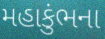
મહાકુંભના